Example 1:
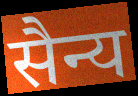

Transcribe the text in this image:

सैन्‍य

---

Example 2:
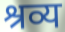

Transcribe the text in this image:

श्रव्य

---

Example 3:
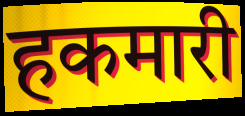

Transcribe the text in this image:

हकमारी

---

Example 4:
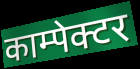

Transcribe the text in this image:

काम्पेक्टर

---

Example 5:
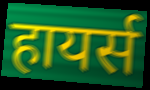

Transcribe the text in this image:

हायर्स